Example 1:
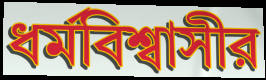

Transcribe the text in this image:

ধর্মবিশ্বাসীর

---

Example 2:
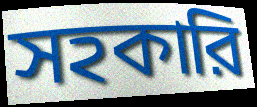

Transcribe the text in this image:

সহকারি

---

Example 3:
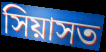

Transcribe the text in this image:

সিয়াসত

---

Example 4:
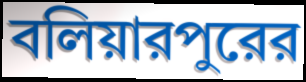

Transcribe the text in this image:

বলিয়ারপুরের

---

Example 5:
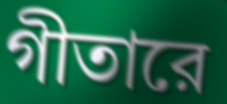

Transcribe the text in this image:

গীতারে